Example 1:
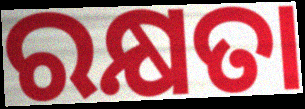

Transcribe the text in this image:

ରକ୍ଷତା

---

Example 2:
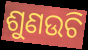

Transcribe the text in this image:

ଶୁଣଉଚି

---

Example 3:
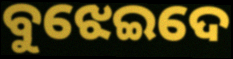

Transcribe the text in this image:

ବୁଝେଇଦେ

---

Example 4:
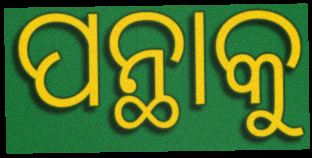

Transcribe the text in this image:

ପନ୍ଥାକୁ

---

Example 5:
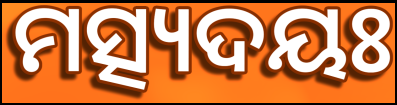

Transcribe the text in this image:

ମତ୍ସ୍ୟଦୟଃ